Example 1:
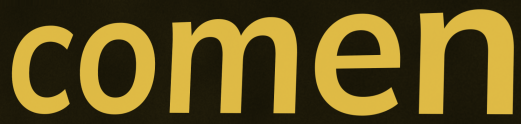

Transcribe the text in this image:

comen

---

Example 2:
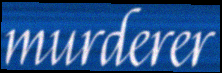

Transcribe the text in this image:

murderer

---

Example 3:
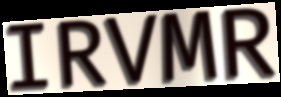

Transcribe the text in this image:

IRVMR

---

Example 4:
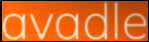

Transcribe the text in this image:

avadle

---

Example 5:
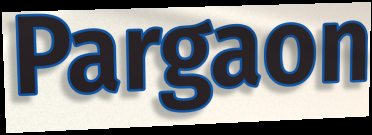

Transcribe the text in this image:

Pargaon